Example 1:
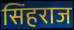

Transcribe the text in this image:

सिंहराज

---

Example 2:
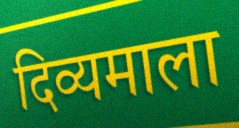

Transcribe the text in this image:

दिव्यमाला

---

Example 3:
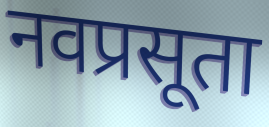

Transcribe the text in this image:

नवप्रसूता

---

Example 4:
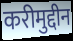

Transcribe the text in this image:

करीमुद्दीन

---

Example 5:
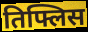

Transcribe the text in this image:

तिफ्लिस